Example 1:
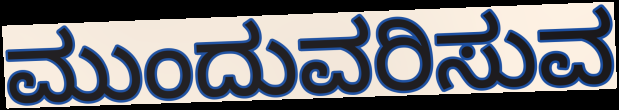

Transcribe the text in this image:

ಮುಂದುವರಿಸುವ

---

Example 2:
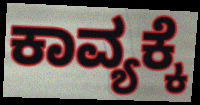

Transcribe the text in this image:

ಕಾವ್ಯಕ್ಕೆ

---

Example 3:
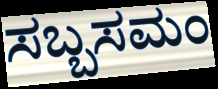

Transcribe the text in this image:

ಸಬ್ಬಸಮಂ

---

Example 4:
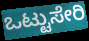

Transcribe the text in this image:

ಒಟ್ಟುಸೇರಿ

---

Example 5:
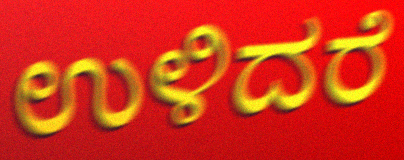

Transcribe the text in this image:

ಉಳಿದರೆ